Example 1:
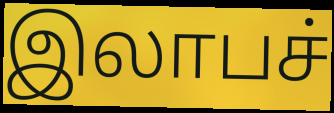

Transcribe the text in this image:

இலாபச்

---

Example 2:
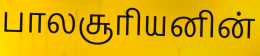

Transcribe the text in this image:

பாலசூரியனின்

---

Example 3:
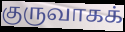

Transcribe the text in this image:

குருவாகக்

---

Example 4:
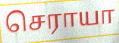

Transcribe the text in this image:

செராயா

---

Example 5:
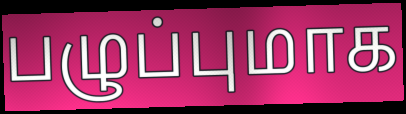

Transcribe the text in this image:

பழுப்புமாக